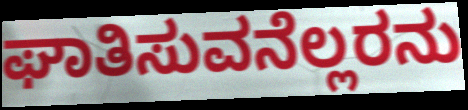
ಘಾತಿಸುವನೆಲ್ಲರನು